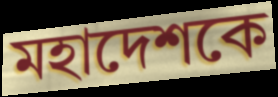
মহাদেশকে